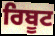
ਰਿਬੂਟ